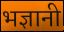
भज्ञानी